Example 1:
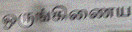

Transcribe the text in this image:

ஒருங்கிணைய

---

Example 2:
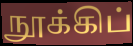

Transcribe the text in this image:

நூக்கிப்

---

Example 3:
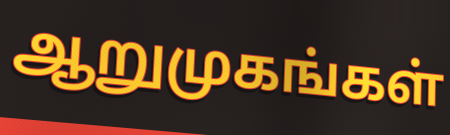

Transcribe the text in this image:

ஆறுமுகங்கள்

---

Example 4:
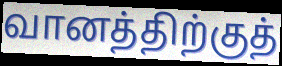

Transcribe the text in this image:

வானத்திற்குத்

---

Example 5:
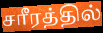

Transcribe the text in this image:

சரீரத்தில்